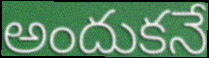
అందుకనే